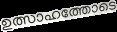
ഉത്സാഹത്തോടെ